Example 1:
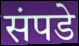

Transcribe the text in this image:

संपडे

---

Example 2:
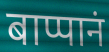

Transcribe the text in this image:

बाप्पानं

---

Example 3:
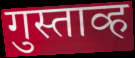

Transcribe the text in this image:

गुस्ताव्ह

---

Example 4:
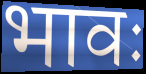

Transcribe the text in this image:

भावः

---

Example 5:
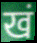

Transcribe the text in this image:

खं